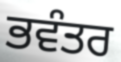
ਭਵੰਤਰ